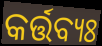
କର୍ତ୍ତବ୍ୟଃ